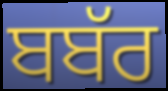
ਬਬੱਰ